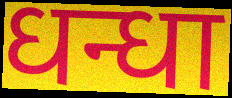
धन्धा